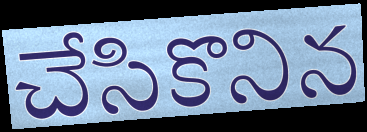
చేసికొనిన